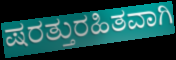
ಷರತ್ತುರಹಿತವಾಗಿ